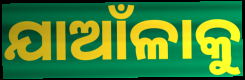
ଯାଆଁଳାକୁ